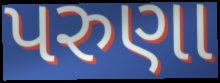
પરુણા